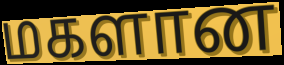
மகளான